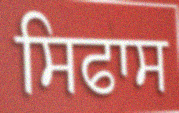
ਸਿਫਾਸ